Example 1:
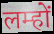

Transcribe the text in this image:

लम्हों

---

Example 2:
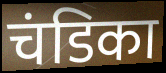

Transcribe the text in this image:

चंडिका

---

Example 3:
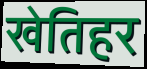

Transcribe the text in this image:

खेतिहर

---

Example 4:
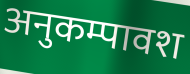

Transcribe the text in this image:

अनुकम्पावश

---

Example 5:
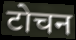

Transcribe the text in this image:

टोचन